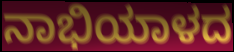
ನಾಭಿಯಾಳದ